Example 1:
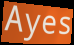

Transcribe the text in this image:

Ayes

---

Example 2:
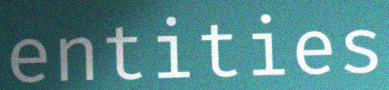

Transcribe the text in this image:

entities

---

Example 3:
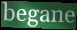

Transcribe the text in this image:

begane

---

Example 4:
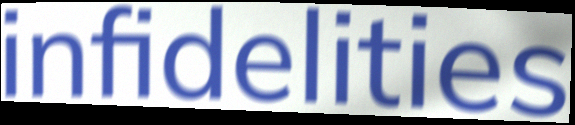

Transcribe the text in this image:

infidelities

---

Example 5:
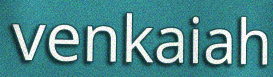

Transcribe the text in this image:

venkaiah